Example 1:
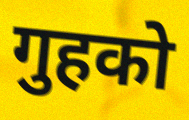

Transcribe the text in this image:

गुहको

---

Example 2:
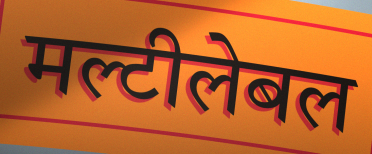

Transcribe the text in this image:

मल्टीलेबल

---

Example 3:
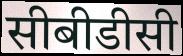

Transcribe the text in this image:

सीबीडीसी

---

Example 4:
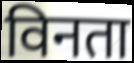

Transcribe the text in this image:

विनता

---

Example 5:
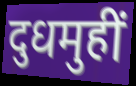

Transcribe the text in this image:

दुधमुहीं